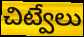
చిట్వేలు